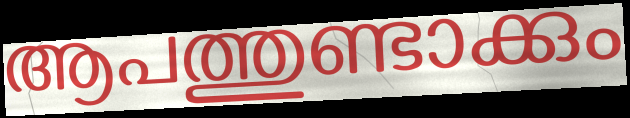
ആപത്തുണ്ടാക്കും